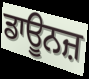
ਡਾਊਨਜ਼